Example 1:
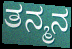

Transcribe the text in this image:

ತನ್ಮನ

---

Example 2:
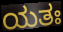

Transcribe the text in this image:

ಯತಃ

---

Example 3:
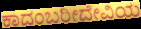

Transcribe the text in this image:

ಕಾದಂಬರೀದೇವಿಯ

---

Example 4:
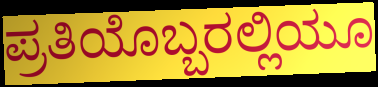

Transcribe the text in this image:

ಪ್ರತಿಯೊಬ್ಬರಲ್ಲಿಯೂ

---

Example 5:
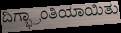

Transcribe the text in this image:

ದಿಗ್ಭ್ರಾಂತಿಯಾಯಿತು